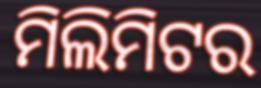
ମିଲିମିଟର